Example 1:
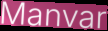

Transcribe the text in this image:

Manvar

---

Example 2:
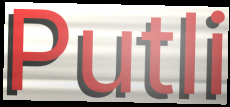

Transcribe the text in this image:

Putli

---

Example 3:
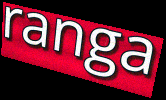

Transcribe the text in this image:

ranga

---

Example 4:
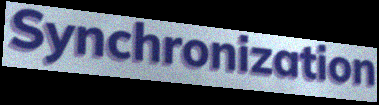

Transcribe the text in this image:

Synchronization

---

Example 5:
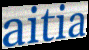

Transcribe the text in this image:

aitia